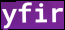
yfir